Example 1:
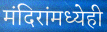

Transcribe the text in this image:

मंदिरांमध्येही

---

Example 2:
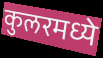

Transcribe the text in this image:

कुलरमध्ये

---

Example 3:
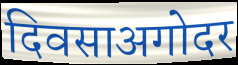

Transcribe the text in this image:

दिवसाअगोदर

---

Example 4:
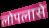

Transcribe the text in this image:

लोपलासे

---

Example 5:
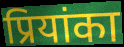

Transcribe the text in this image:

प्रियांका